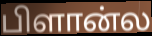
பிளான்ல